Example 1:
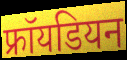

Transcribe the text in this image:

फ्रॉयडियन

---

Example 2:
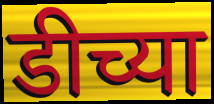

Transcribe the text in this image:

डीच्या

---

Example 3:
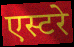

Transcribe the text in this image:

एस्टरे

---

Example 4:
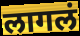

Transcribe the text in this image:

लागलं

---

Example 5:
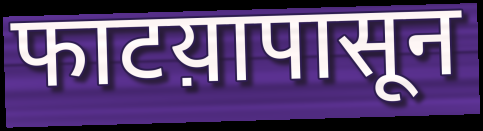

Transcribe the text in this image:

फाटय़ापासून